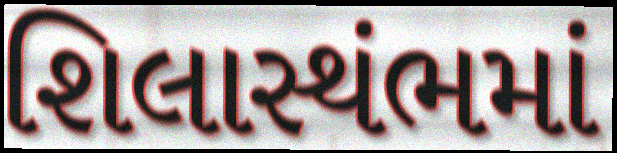
શિલાસ્થંભમાં